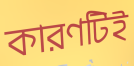
কারণটিই